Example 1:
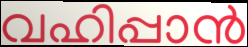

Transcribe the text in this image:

വഹിപ്പാൻ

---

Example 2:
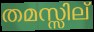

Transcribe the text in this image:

തമസ്സില്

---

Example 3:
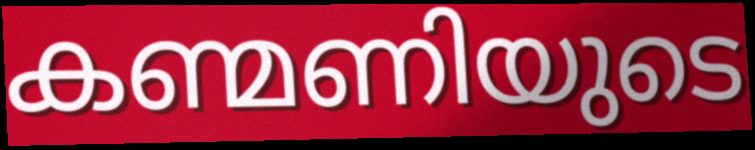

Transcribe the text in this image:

കണ്മണിയുടെ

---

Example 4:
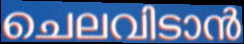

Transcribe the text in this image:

ചെലവിടാൻ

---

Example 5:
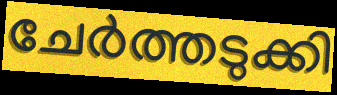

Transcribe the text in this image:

ചേർത്തടുക്കി